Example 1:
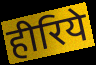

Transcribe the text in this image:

हीरिये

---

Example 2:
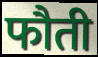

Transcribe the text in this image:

फौती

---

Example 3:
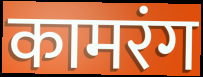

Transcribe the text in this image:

कामरंग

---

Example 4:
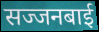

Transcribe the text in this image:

सज्जनबाई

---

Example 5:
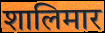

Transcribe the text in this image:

शालिमार